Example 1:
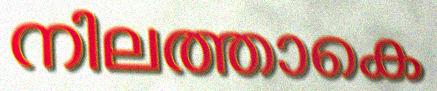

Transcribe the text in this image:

നിലത്താകെ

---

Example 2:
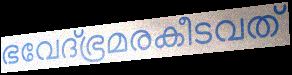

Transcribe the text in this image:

ഭവേദ്ഭ്രമരകീടവത്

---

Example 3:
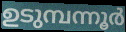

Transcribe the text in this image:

ഉടുമ്പന്നൂർ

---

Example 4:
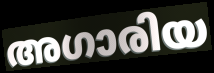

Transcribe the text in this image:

അഗാരിയ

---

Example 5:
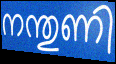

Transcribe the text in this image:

നന്തുണി